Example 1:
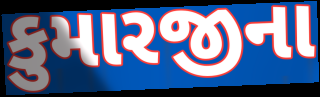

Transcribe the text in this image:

કુમારજીના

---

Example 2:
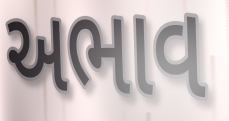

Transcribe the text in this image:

અભાવ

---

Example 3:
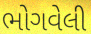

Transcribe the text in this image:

ભોગવેલી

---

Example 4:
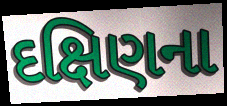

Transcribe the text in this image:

દક્ષિણના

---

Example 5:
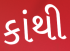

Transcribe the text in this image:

કાંથી